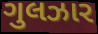
ગુલઝાર